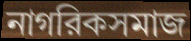
নাগরিকসমাজ